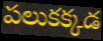
పలుకక్కడ